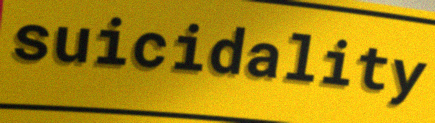
suicidality